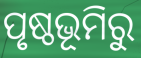
ପୃଷ୍ଠଭୂମିରୁ